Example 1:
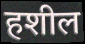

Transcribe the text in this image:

हशील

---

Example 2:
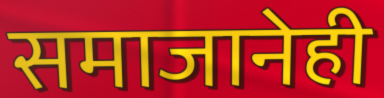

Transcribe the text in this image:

समाजानेही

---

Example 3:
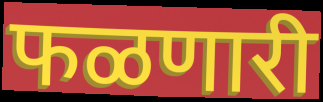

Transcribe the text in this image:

फळणारी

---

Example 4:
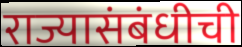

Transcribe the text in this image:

राज्यासंबंधीची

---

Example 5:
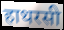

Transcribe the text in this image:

हाथरसी